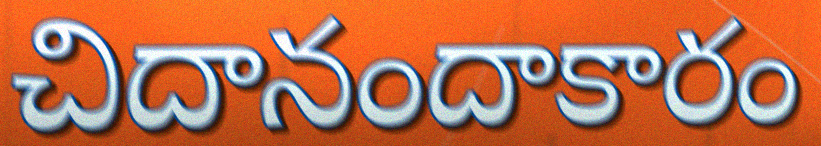
చిదానందాకారం